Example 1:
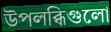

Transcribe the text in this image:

উপলব্ধিগুলো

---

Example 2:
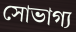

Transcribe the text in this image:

সোভাগ্য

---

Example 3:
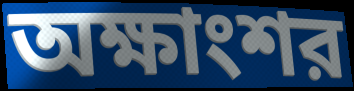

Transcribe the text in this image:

অক্ষাংশর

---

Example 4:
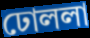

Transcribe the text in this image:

ঢোললা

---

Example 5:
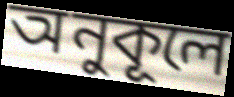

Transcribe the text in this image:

অনুকূলে